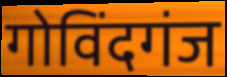
गोविंदगंज